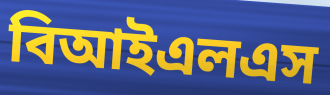
বিআইএলএস